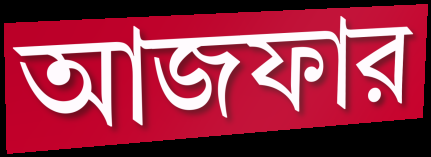
আজফার